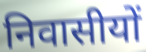
निवासीयों